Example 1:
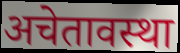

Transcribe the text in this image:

अचेतावस्था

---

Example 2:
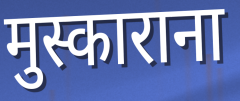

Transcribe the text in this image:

मुस्काराना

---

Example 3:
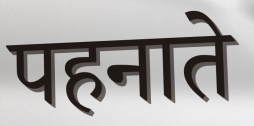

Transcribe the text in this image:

पहनाते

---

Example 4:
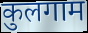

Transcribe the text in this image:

कुलगाम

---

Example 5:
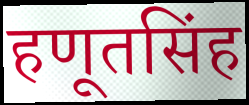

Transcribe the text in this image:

हणूतसिंह